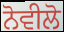
ਨੋਵੀਲੋ